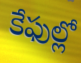
కేఫుల్లో